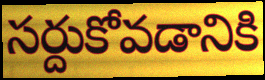
సర్దుకోవడానికి